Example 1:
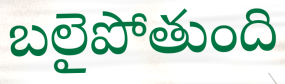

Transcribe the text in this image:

బలైపోతుంది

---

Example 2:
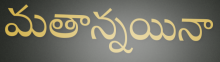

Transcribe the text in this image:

మతాన్నయినా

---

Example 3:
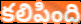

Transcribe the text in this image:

కలిపింది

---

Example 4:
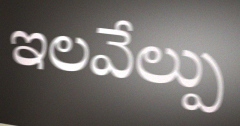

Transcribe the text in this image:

ఇలవేల్పు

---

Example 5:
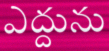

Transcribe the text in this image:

ఎద్దును